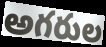
అగరుల